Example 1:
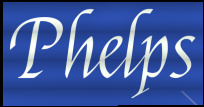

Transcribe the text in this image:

Phelps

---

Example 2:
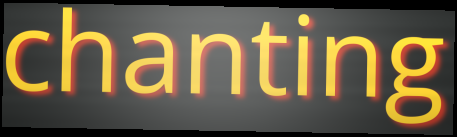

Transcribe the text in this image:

chanting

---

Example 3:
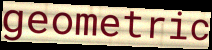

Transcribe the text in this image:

geometric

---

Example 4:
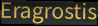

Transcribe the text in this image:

Eragrostis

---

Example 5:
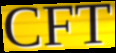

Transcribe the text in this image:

CFT